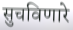
सुचविणारे